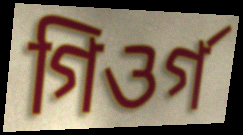
গিওৰ্গ